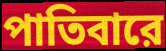
পাতিবারে